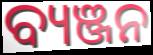
ବ୍ୟଞ୍ଜନ